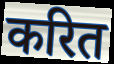
करित